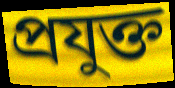
প্রযুক্ত